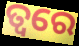
ତ୍ଵରେ